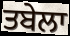
ਤਬੇਲਾ